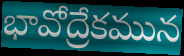
భావోద్రేకమున